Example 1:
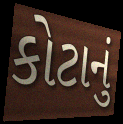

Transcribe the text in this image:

કોટાનું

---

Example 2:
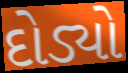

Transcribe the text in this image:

દોડ્યો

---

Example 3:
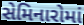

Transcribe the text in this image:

સેમિનારોમાં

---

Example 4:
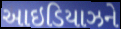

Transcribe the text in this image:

આઇડિયાઝને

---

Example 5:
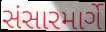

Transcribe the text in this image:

સંસારમાર્ગે